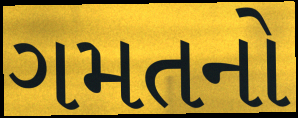
ગમતનો